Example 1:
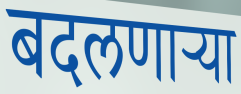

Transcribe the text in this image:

बदलणाऱ्या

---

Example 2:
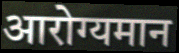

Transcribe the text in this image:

आरोग्यमान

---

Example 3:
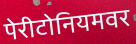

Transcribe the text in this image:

पेरीटोनियमवर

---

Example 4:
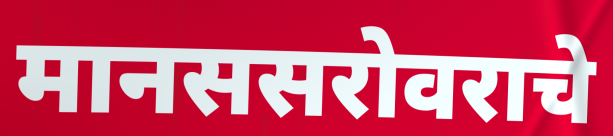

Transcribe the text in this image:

मानससरोवराचे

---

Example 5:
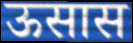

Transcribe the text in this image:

ऊसास